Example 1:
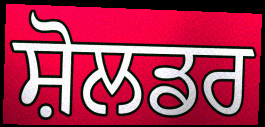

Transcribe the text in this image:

ਸ਼ੋਲਡਰ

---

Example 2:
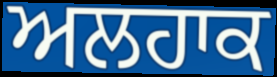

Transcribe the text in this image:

ਅਲਹਾਕ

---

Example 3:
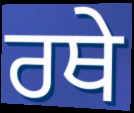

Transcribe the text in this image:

ਰਥੇ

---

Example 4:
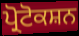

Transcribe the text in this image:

ਪ੍ਰੋਟੋਕਸ਼ਨ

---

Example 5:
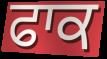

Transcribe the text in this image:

ਫਾਕ